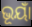
ଭୂୟାଁ